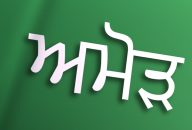
ਅਮੋੜ